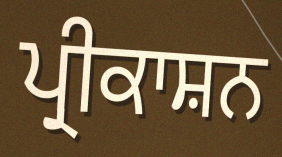
ਪ੍ਰੀਕਾਸ਼ਨ